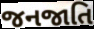
જનજાતિ